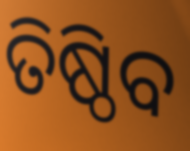
ତିଷ୍ଠିବ